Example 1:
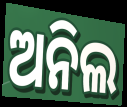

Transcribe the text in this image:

ଅନିଲ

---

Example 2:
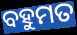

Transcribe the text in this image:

ବହୁମତ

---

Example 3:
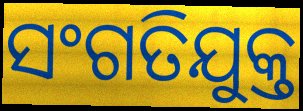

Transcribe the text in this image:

ସଂଗତିଯୁକ୍ତ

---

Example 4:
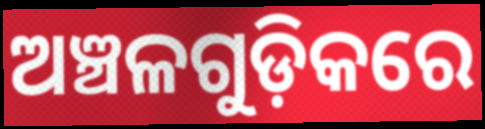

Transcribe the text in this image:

ଅଞ୍ଚଳଗୁଡ଼ିକରେ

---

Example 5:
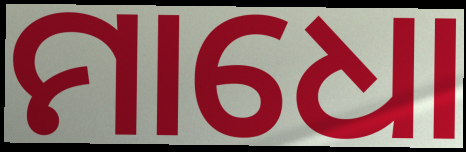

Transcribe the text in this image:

ମାଧୋ